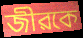
জীৱকে